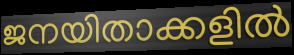
ജനയിതാക്കളിൽ